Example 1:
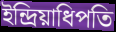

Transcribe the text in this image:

ইন্দ্রিয়াধিপতি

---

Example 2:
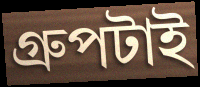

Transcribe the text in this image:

গ্রুপটাই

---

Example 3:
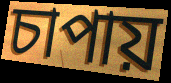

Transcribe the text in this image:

চাপায়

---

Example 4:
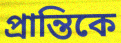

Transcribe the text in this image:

প্রান্তিকে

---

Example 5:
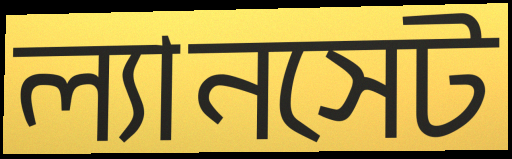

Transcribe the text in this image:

ল্যানসেট